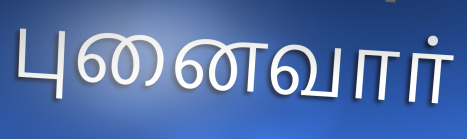
புனைவார்